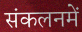
संकलनमें